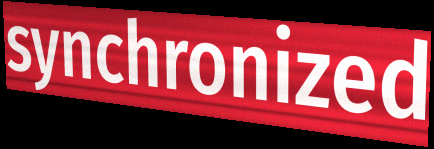
synchronized